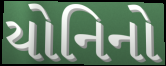
યોનિનો